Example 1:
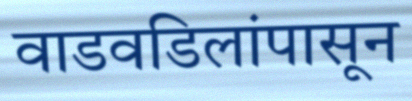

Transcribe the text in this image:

वाडवडिलांपासून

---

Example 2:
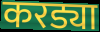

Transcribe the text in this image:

करड्या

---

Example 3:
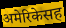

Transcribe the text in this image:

अमेरिकेसह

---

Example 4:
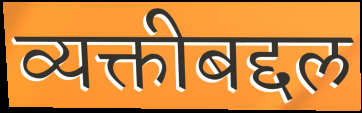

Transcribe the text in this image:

व्यक्तीबद्दल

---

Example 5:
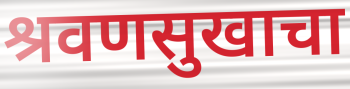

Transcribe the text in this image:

श्रवणसुखाचा